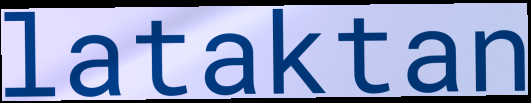
lataktan